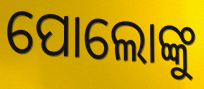
ପୋଲୋଙ୍କୁ